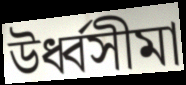
উর্ধ্বসীমা